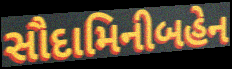
સૌદામિનીબહેન